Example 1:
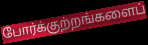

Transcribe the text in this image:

போர்க்குற்றங்களைப்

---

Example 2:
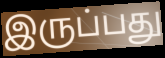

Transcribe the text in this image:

இருப்பது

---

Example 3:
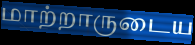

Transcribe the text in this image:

மாற்றாருடைய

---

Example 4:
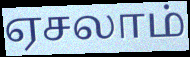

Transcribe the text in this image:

ஏசலாம்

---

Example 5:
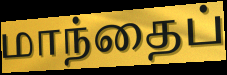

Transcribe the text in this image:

மாந்தைப்